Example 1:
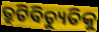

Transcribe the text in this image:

ତ୍ରୁଟିବିଚ୍ୟୁତିକୁ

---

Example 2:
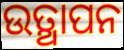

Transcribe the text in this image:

ଉତ୍ଥାପନ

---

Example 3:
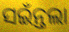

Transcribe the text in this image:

ସଇଁନ୍ତଲା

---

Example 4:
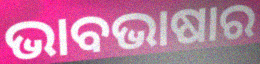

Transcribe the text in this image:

ଭାବଭାଷାର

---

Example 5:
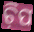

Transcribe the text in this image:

ଚ଼ିପ